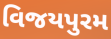
વિજયપુરમ